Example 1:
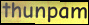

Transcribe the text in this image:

thunpam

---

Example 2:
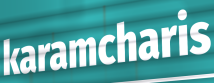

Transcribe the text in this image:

karamcharis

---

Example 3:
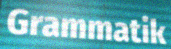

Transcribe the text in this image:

Grammatik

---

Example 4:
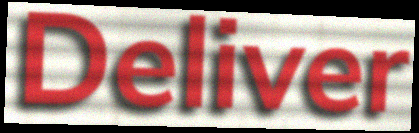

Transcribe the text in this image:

Deliver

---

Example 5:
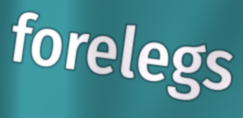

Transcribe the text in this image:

forelegs